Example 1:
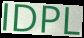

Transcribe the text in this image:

IDPL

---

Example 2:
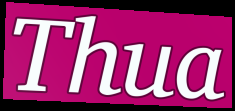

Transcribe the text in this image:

Thua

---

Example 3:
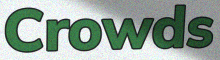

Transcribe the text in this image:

Crowds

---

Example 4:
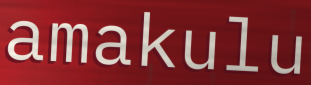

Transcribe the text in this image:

amakulu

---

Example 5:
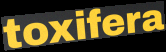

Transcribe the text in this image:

toxifera